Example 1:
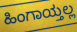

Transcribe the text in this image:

ಹಿಂಗಾಯ್ತಲ್ಲ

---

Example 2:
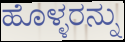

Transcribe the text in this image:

ಹೊಳ್ಳರನ್ನು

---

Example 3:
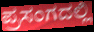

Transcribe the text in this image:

ಪ್ರಸಂಗದಲ್ಲಿ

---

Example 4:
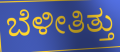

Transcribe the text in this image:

ಬೆಳೀತಿತ್ತು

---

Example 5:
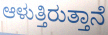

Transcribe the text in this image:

ಆಳುತ್ತಿರುತ್ತಾನೆ